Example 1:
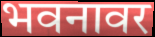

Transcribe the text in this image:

भवनावर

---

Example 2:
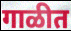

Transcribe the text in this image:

गाळीत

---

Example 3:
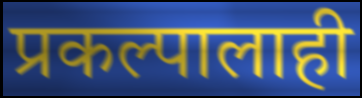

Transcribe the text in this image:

प्रकल्पालाही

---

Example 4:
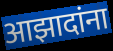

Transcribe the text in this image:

आझादांना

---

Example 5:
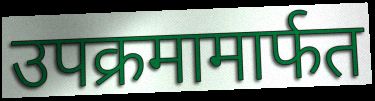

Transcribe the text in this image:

उपक्रमामार्फत